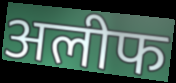
अलीफ